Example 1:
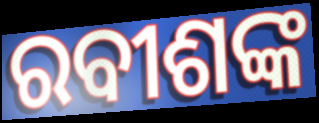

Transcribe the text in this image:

ରବୀଶଙ୍କ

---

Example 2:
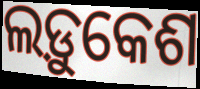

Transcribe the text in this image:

ଲଡ଼ୁକେଶ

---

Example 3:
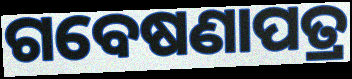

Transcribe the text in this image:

ଗବେଷଣାପତ୍ର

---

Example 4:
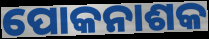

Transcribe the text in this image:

ପୋକନାଶକ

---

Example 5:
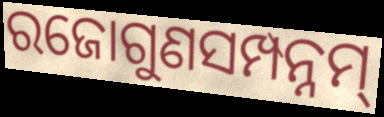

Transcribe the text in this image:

ରଜୋଗୁଣସମ୍ପନ୍ନମ୍